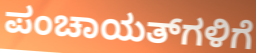
ಪಂಚಾಯತ್‌ಗಳಿಗೆ